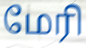
மேரி